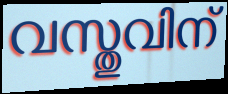
വസ്തുവിന്